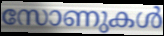
സോണുകൾ